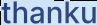
thanku